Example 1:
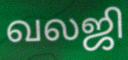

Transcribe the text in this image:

வலஜி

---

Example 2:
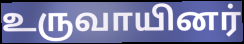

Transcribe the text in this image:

உருவாயினர்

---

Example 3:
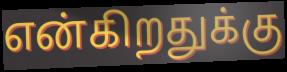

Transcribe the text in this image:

என்கிறதுக்கு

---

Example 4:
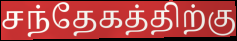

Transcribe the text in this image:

சந்தேகத்திற்கு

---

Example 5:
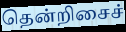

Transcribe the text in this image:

தென்றிசைச்